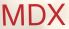
MDX